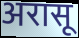
अरासू